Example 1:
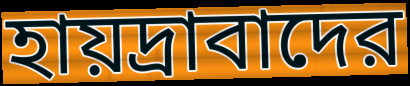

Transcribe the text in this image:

হায়দ্রাবাদের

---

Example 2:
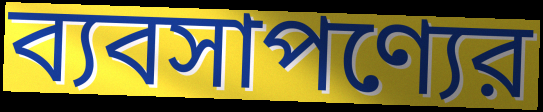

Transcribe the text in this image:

ব্যবসাপণ্যের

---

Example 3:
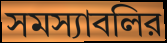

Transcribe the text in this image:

সমস্যাবলির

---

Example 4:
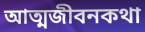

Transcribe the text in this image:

আত্মজীবনকথা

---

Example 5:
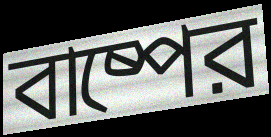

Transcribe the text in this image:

বাষ্পের